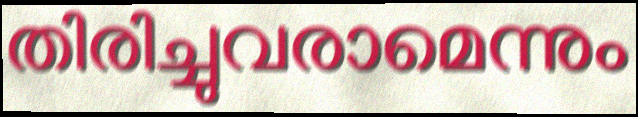
തിരിച്ചുവരാമെന്നും